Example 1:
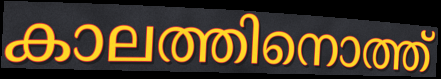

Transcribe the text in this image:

കാലത്തിനൊത്ത്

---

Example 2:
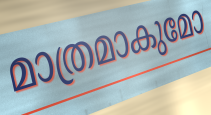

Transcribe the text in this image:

മാത്രമാകുമോ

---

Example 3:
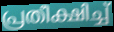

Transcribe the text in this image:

പ്രതീക്ഷിച്ച്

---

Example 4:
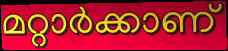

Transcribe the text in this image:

മറ്റാർക്കാണ്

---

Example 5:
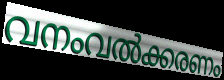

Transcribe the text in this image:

വനംവൽക്കരണം